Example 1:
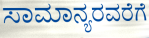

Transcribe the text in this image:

ಸಾಮಾನ್ಯರವರೆಗೆ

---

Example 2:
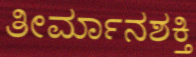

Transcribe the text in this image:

ತೀರ್ಮಾನಶಕ್ತಿ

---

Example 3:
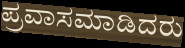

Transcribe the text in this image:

ಪ್ರವಾಸಮಾಡಿದರು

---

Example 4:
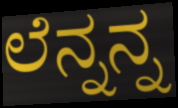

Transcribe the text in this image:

ಲೆನ್ನನ್ನ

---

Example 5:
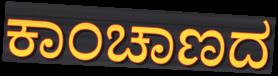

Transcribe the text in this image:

ಕಾಂಚಾಣದ